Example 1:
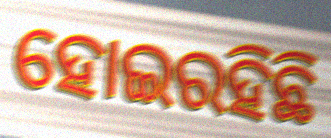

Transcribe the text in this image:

ହୋଇରହିଛି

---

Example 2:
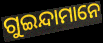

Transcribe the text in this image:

ଗୁଇନ୍ଦାମାନେ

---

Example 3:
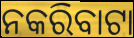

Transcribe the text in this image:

ନକରିବାଟା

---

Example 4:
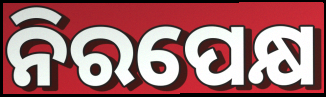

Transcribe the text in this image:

ନିରପେକ୍ଷ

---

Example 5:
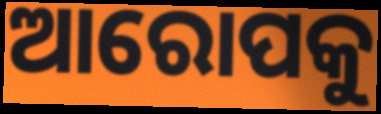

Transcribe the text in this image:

ଆରୋପକୁ